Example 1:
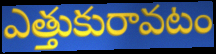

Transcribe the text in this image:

ఎత్తుకురావటం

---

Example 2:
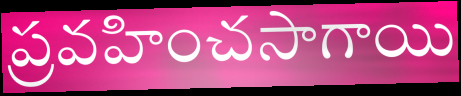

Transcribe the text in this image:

ప్రవహించసాగాయి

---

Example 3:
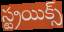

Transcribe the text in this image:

స్ట్రయిక్స్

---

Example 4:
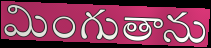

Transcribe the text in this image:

మింగుతాను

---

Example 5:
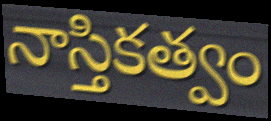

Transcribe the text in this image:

నాస్తికత్వం